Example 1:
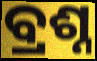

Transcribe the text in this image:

ବ୍ରଶ୍ନ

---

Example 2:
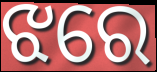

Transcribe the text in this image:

ଝରେ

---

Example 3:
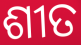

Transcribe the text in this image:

ଶୀତ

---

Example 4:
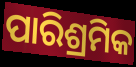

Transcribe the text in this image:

ପାରିଶ୍ରମିକ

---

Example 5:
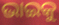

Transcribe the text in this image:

ଭାଇକୁ